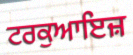
ਟਰਕੁਆਇਜ਼